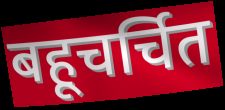
बहूचर्चित